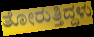
ತೋರುತ್ತಿದ್ದಳು